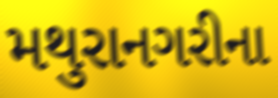
મથુરાનગરીના